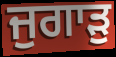
ਜੁਗਾੜੁ